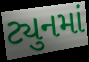
ટ્યુનમાં